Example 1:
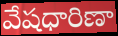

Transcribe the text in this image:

వేషధారిణా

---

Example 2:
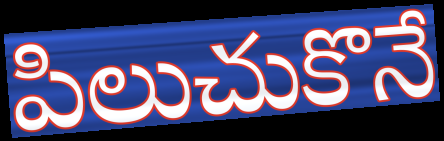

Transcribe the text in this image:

పిలుచుకొనే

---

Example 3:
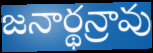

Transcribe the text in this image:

జనార్థన్రావు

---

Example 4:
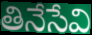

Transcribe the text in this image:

తినేసేవి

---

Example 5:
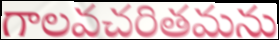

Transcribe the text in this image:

గాలవచరితమను